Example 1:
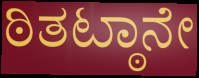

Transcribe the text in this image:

ಠಿತಟ್ಠಾನೇ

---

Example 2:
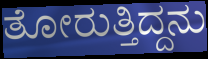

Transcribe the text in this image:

ತೋರುತ್ತಿದ್ದನು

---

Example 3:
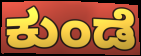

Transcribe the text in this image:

ಕುಂಡೆ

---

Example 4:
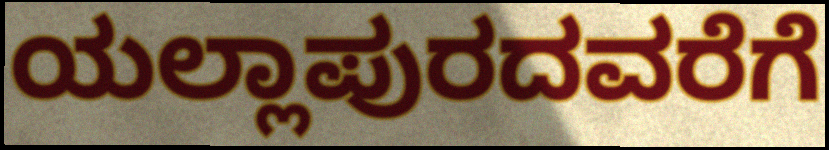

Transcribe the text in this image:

ಯಲ್ಲಾಪುರದವರೆಗೆ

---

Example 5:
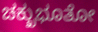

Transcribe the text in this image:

ಚಕ್ಖುಭೂತೋ